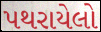
પથરાયેલો